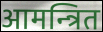
आमन्त्रित